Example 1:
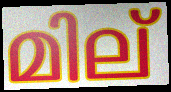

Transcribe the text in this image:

മില്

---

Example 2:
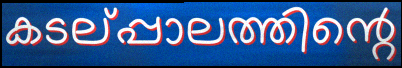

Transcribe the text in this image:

കടല്പ്പാലത്തിന്റെ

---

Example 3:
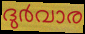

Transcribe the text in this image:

ദുർവാര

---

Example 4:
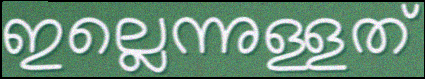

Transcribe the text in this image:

ഇല്ലെന്നുള്ളത്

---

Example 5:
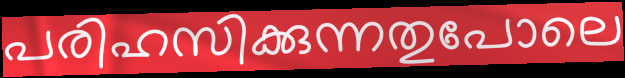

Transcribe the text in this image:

പരിഹസിക്കുന്നതുപോലെ